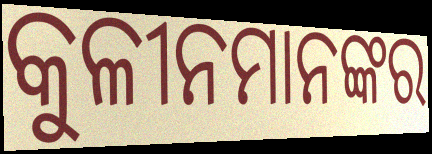
କୁଳୀନମାନଙ୍କର